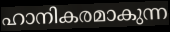
ഹാനികരമാകുന്ന